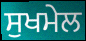
ਸੁਖਮੇਲ